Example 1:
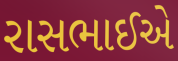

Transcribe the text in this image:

રાસભાઈએ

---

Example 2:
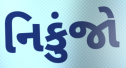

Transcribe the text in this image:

નિકુંજો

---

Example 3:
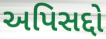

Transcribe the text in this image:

અપિસદ્દો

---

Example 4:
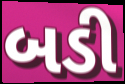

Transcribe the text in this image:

બડી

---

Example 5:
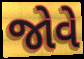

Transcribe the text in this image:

જોવે